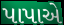
પાપાએ